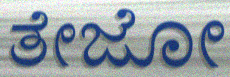
ತೇಜೋ